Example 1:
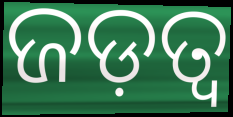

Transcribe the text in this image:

ଜଡ଼ତ୍ଵ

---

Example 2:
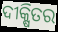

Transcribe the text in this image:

ଦୀକ୍ଷିତର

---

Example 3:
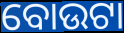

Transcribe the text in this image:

ବୋଉଟା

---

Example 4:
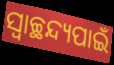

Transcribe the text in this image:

ସ୍ୱାଚ୍ଛନ୍ଦ୍ୟପାଇଁ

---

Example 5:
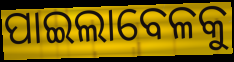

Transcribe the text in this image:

ପାଇଲାବେଳକୁ